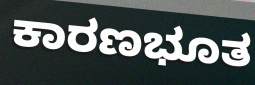
ಕಾರಣಭೂತ